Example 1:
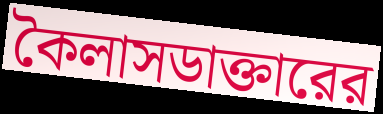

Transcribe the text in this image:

কৈলাসডাক্তারের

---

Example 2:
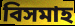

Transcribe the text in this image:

বিসমাহ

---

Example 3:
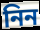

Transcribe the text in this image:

নিন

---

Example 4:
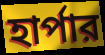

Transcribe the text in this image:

হার্পার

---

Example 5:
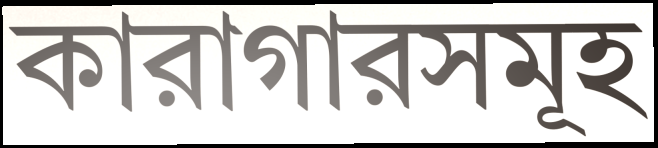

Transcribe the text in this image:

কারাগারসমূহ